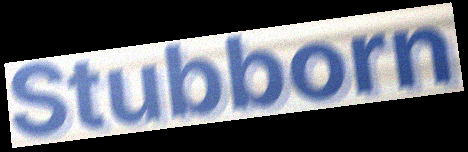
Stubborn